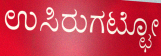
ಉಸಿರುಗಟ್ಟೋ